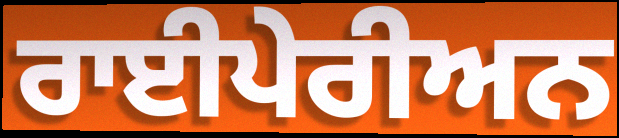
ਰਾਈਪੇਰੀਅਨ